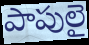
పాపులై